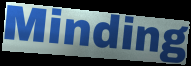
Minding